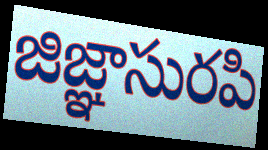
జిజ్ఞాసురపి